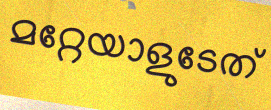
മറ്റേയാളുടേത്